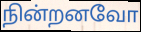
நின்றனவோ